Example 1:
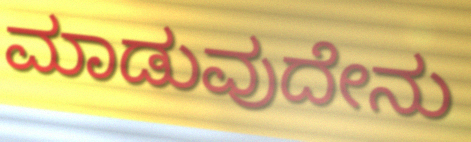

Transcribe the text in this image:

ಮಾಡುವುದೇನು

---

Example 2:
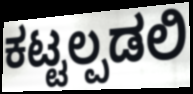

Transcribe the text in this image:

ಕಟ್ಟಲ್ಪಡಲಿ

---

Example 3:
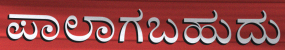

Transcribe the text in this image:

ಪಾಲಾಗಬಹುದು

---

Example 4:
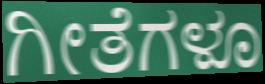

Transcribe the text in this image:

ಗೀತೆಗಳೂ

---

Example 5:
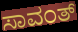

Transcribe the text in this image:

ಸಾವಂತ್